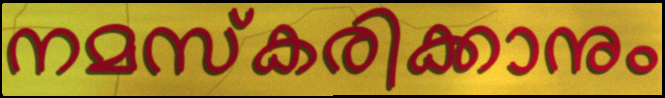
നമസ്കരിക്കാനും